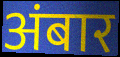
अंबार